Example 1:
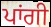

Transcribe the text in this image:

ਪਾਂਗੀ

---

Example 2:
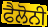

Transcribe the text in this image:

ਫੈਲੋਨੀ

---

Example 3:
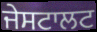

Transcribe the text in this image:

ਜੇਸਟਾਲਟ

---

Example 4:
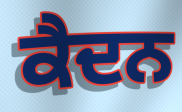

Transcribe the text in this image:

ਕੈਦਨ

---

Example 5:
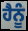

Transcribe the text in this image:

ਹੈਨੂੰ